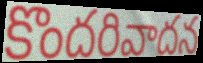
కొందరివాదన